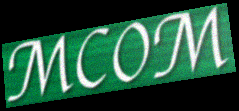
MCOM